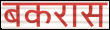
बकरास